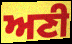
ਅਣੀ